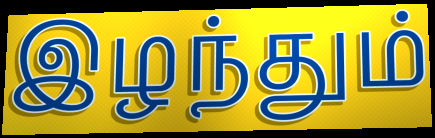
இழந்தும்